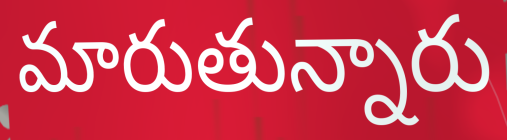
మారుతున్నారు